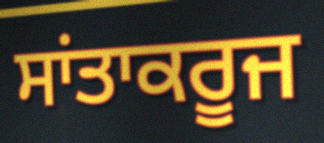
ਸਾਂਤਾਕਰੂਜ